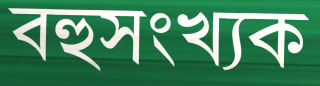
বহুসংখ্যক